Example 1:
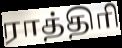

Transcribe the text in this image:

ராத்திரி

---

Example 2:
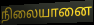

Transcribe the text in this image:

நிலையானை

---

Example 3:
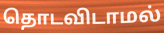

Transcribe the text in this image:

தொடவிடாமல்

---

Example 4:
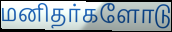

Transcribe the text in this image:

மனிதர்களோடு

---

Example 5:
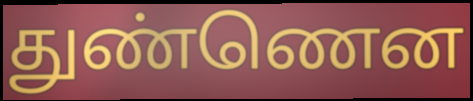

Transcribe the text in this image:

துண்ணென